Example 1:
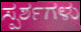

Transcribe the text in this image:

ಸ್ಪರ್ಶಗಳು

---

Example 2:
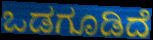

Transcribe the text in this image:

ಒಡಗೂಡಿದೆ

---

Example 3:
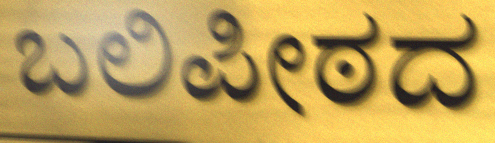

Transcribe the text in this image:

ಬಲಿಪೀಠದ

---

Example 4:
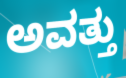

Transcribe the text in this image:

ಅವತ್ತು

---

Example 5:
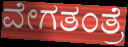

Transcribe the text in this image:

ವೇಗತಂತ್ರೆ